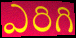
ఎరిగి